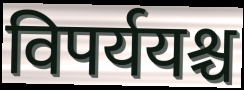
विपर्ययश्च